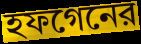
হফগেনের